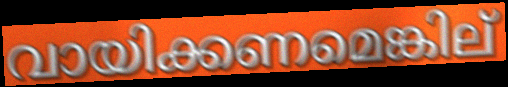
വായിക്കണമെങ്കില്